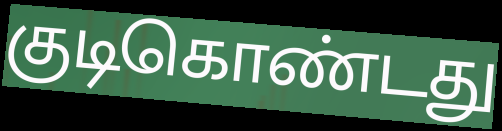
குடிகொண்டது